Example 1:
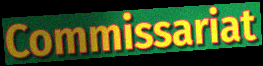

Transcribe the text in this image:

Commissariat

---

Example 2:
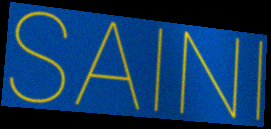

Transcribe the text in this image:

SAINI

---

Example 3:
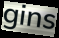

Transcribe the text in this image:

gins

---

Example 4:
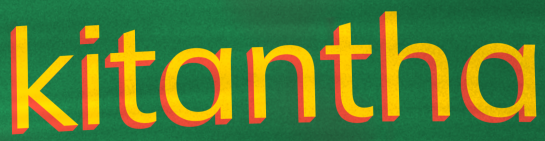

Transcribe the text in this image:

kitantha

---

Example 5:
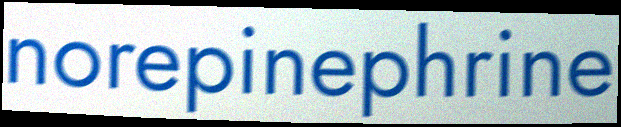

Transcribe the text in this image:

norepinephrine